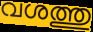
വശത്തു